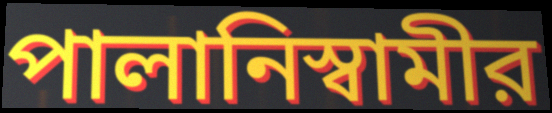
পালানিস্বামীর